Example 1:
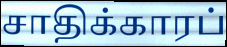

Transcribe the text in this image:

சாதிக்காரப்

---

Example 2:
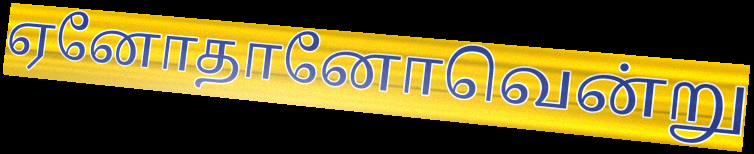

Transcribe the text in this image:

ஏனோதானோவென்று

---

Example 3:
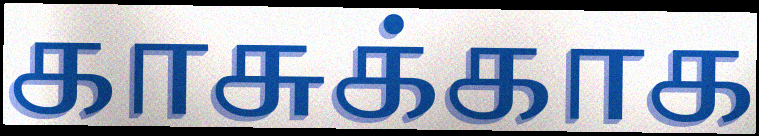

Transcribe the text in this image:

காசுக்காக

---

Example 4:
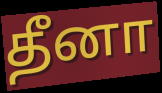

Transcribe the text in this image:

தீனா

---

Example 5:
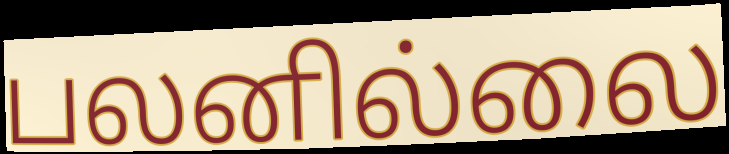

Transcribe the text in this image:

பலனில்லை